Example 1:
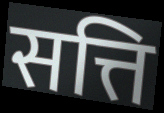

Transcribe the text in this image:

सत्ति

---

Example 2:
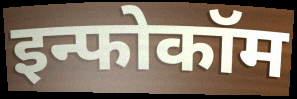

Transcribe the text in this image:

इन्फोकॉम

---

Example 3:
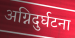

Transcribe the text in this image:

अग्निदुर्घटना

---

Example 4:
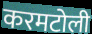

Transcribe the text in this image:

करमटोली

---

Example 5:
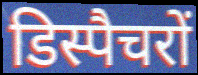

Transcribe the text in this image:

डिस्पैचरों